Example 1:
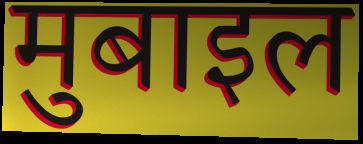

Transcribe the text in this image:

मुबाइल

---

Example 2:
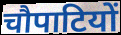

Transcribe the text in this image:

चौपाटियों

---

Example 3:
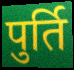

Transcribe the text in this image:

पुर्ति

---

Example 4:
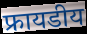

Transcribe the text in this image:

फ्रायडीय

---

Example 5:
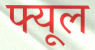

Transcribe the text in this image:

फ्यूल